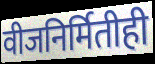
वीजनिर्मितीही